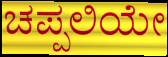
ಚಪ್ಪಲಿಯೇ